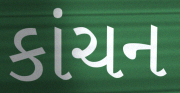
કાંચન